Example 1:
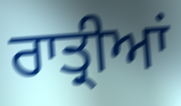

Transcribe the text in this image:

ਰਾਤ੍ਰੀਆਂ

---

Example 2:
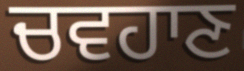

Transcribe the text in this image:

ਚਵਹਾਣ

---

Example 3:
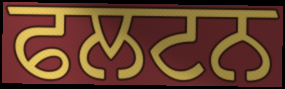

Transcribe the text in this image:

ਫਲਟਨ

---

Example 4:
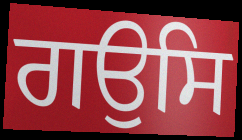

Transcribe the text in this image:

ਗਉਸਿ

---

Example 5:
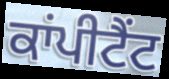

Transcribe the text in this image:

ਕਾਂਪੀਟੈਂਟ